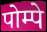
पोम्पे